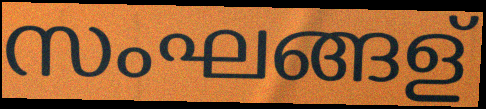
സംഘങ്ങള്